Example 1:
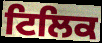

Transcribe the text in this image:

ਟਿਲਿਕ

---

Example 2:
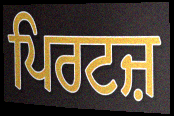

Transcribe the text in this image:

ਪਿਰਟਜ਼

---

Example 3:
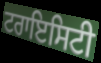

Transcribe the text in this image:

ਟਰਾਇਸਿਟੀ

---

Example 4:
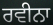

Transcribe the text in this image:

ਰਵੀਨਾ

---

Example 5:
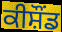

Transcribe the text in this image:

ਕੀਸ਼ੌਂਡ